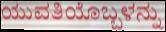
ಯುವತಿಯೊಬ್ಬಳನ್ನು